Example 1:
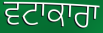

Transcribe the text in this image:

ਵਟਾਕਾਰਾ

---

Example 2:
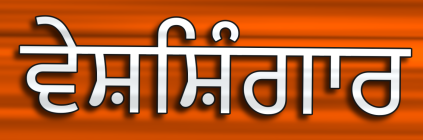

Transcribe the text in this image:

ਵੇਸ਼ਸ਼ਿੰਗਾਰ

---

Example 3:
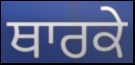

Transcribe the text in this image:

ਥਾਰਕੇ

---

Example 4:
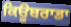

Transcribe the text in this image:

ਕਿਊਬਰਾਡਾ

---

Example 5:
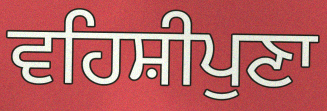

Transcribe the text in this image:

ਵਹਿਸ਼ੀਪੁਣਾ